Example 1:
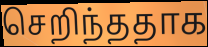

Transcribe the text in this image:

செறிந்ததாக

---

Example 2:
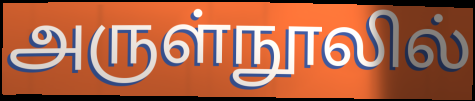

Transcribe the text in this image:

அருள்நூலில்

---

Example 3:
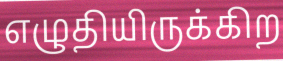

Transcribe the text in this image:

எழுதியிருக்கிற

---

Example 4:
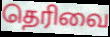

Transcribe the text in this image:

தெரிவை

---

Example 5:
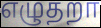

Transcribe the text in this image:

எழுதறா